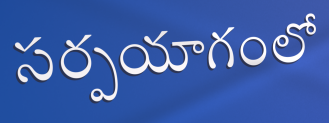
సర్పయాగంలో